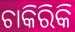
ଚାକିରିକି